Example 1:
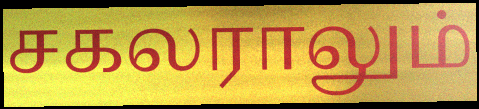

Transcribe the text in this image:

சகலராலும்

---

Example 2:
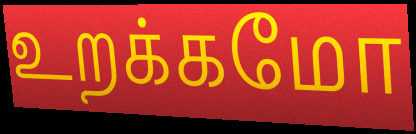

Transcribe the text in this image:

உறக்கமோ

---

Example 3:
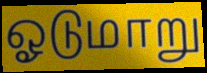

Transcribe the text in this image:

ஓடுமாறு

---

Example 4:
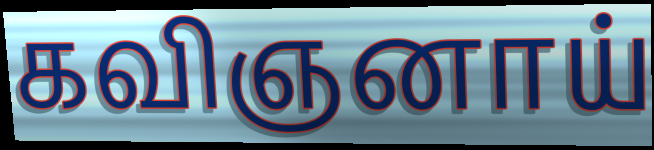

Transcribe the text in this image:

கவிஞனாய்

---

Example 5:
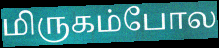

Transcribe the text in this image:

மிருகம்போல